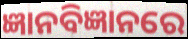
ଜ୍ଞାନବିଜ୍ଞାନରେ